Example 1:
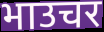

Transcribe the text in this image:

भाउचर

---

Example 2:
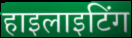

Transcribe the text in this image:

हाइलाइटिंग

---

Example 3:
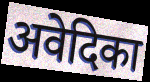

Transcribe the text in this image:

अवेदिका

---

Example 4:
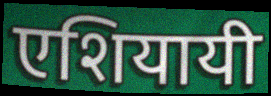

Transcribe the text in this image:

एशियायी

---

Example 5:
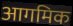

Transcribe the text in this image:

आगमिक